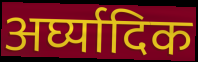
अर्घ्यादिक